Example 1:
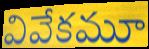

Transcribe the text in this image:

వివేకమూ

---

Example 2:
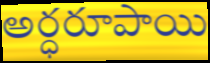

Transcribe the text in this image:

అర్ధరూపాయి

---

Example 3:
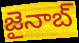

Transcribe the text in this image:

జైనాబ్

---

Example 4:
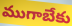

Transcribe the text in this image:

ముగాబేకు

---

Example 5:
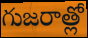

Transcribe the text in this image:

గుజరాత్లో